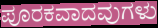
ಪೂರಕವಾದವುಗಳು